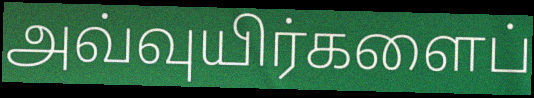
அவ்வுயிர்களைப்